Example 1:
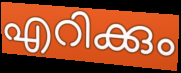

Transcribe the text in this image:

എറിക്കും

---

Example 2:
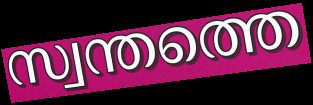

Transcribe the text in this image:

സ്വന്തത്തെ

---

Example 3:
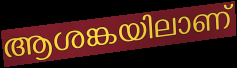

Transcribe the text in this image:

ആശങ്കയിലാണ്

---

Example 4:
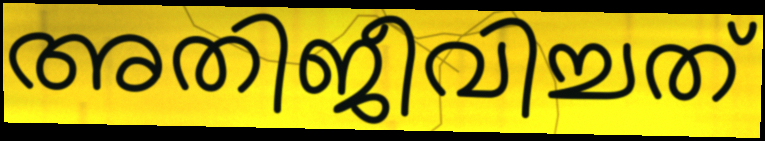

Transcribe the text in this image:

അതിജീവിച്ചത്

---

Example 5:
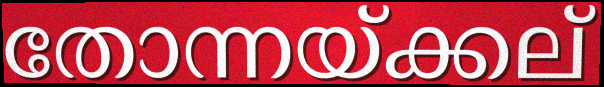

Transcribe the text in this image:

തോന്നയ്ക്കല്